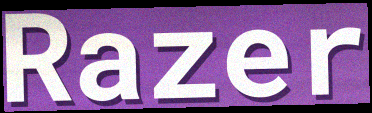
Razer